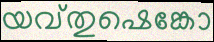
യവ്തുഷെങ്കോ